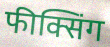
फीक्सिंग